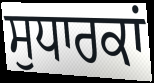
ਸੁਧਾਰਕਾਂ